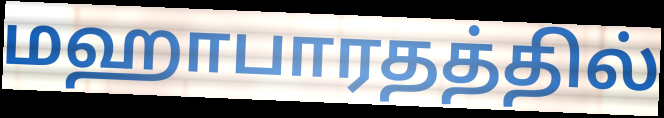
மஹாபாரதத்தில்